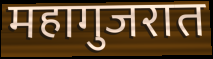
महागुजरात